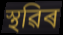
স্থৱিৰ